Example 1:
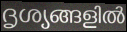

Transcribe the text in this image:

ദൃശ്യങ്ങളിൽ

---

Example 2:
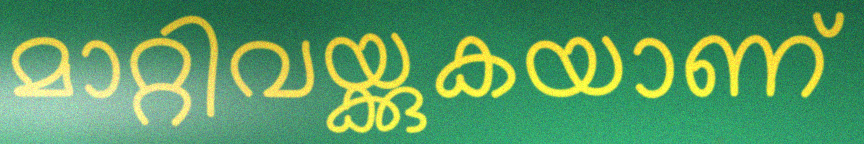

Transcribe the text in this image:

മാറ്റിവയ്ക്കുകയാണ്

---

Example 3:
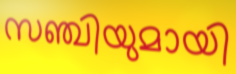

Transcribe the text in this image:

സഞ്ചിയുമായി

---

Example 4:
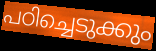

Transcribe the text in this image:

പഠിച്ചെടുക്കും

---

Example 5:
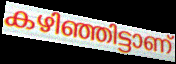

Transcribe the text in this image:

കഴിഞ്ഞിട്ടാണ്